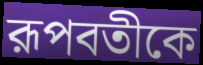
রূপবতীকে